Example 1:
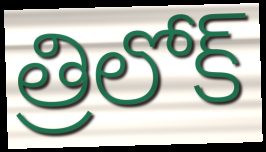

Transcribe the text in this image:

త్రిలోక్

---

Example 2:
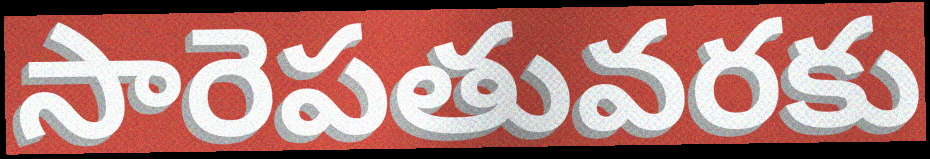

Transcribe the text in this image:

సారెపతువరకు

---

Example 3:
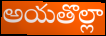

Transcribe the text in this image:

అయతొల్లా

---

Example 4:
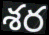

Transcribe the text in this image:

శర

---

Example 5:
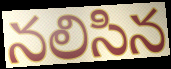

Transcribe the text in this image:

నలిసిన